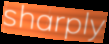
sharply